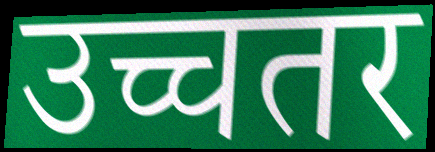
उच्चतर